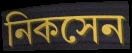
নিকসেন